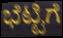
ಭೆಟ್ಟಿಗೆ